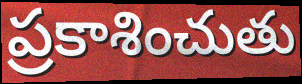
ప్రకాశించుతు